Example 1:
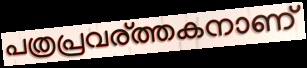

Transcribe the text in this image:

പത്രപ്രവര്ത്തകനാണ്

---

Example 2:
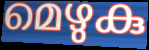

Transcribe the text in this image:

മെഴുകു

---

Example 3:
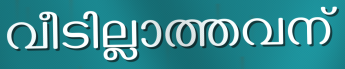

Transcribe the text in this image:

വീടില്ലാത്തവന്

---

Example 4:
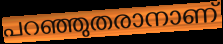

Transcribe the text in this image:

പറഞ്ഞുതരാനാണ്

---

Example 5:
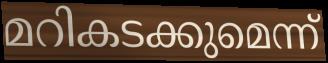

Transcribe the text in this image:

മറികടക്കുമെന്ന്